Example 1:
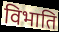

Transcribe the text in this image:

विभाति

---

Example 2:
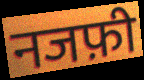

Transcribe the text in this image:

नजफ़ी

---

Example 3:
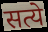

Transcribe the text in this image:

सत्ये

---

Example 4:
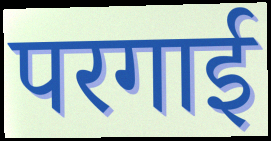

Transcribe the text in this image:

परगाई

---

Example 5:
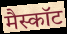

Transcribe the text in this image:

मैस्कॉट